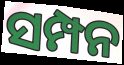
ସମ୍ପନ